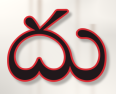
దు